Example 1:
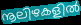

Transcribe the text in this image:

നൂലിഴകളിൽ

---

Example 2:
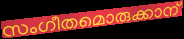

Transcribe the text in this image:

സംഗീതമൊരുക്കാന്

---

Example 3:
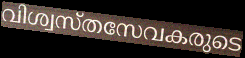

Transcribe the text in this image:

വിശ്വസ്തസേവകരുടെ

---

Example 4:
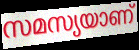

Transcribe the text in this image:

സമസ്യയാണ്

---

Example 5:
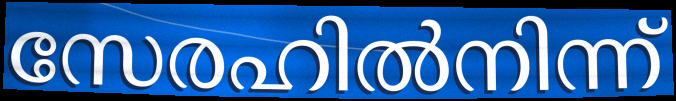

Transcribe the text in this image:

സേരഹിൽനിന്ന്